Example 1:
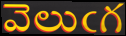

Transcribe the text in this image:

వెలుఁగ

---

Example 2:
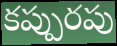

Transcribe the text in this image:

కప్పురపు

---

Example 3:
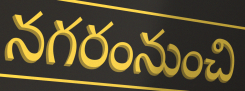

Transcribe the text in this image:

నగరంనుంచి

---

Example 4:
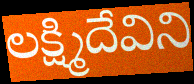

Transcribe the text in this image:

లక్ష్మిదేవిని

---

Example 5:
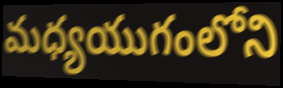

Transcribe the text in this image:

మధ్యయుగంలోని